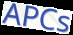
APCs